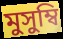
মুসুম্বি